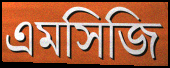
এমসিজি